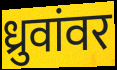
ध्रुवांवर